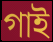
গাই